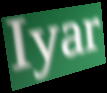
Iyar